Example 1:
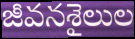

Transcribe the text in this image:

జీవనశైలుల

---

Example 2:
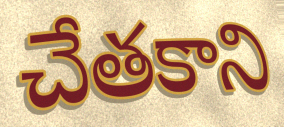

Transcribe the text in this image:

చేతకాని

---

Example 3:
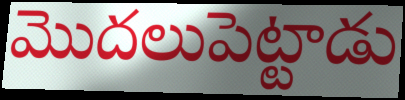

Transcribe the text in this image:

మొదలుపెట్టాడు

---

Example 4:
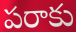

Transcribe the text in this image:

పరాకు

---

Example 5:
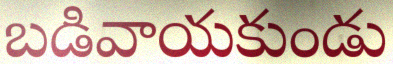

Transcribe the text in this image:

బడివాయకుండు